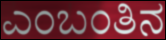
ಎಂಬಂತಿನ